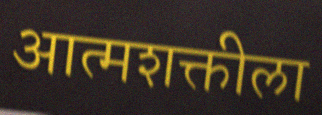
आत्मशक्तीला